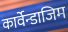
कार्वेन्डाजिम